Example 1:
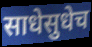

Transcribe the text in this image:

साधेसुधेच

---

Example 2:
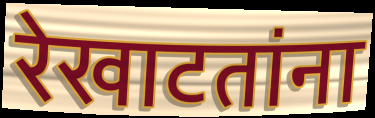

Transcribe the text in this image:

रेखाटतांना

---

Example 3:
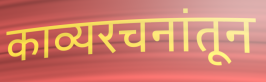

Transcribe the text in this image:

काव्यरचनांतून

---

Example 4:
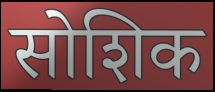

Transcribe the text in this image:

सोशिक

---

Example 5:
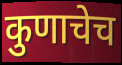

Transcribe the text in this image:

कुणाचेच